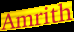
Amrith